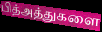
பித்அத்துகளை